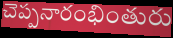
చెప్పనారంభింతురు